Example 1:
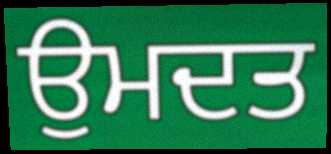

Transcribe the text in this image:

ਉਮਦਤ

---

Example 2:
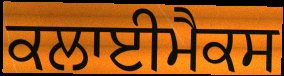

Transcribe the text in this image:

ਕਲਾਈਮੈਕਸ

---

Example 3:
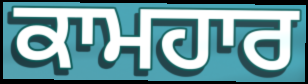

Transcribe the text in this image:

ਕਾਮਹਾਰ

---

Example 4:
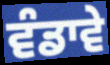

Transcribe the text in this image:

ਵੰਡਾਵੇ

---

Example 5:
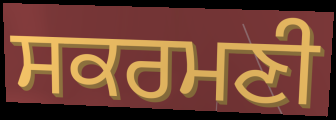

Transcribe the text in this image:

ਸਕਰਮਣੀ